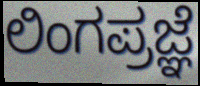
ಲಿಂಗಪ್ರಜ್ಞೆ